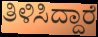
ತಿಳಿಸಿದ್ದಾರೆ